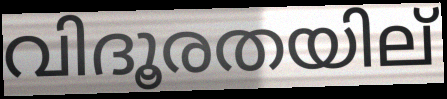
വിദൂരതയില്